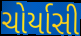
ચોર્યાસી